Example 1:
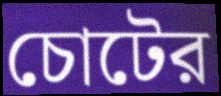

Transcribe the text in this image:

চোটের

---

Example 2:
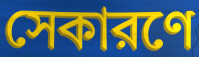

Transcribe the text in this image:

সেকারণে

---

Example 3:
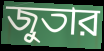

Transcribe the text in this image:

জুতার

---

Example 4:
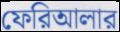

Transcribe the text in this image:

ফেরিআলার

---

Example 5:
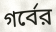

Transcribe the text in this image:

গর্বের